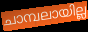
ചാമ്പലായില്ല